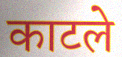
काटले